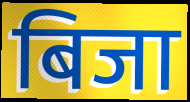
बिजा